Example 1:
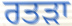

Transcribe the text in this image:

ਰਤੜਾ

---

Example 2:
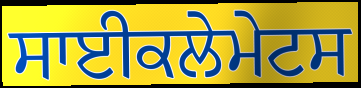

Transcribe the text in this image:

ਸਾਈਕਲੇਮੇਟਸ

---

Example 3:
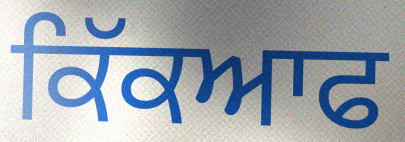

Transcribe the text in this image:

ਕਿੱਕਆਫ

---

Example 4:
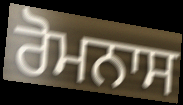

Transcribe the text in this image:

ਰੋਮਨਾਸ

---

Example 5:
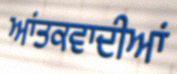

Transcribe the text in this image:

ਆਂਤਕਵਾਦੀਆਂ